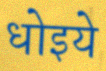
धोइये